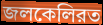
জলকেলিরত